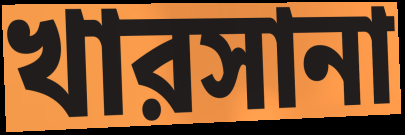
খারসানা